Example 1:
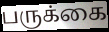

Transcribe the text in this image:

பருக்கை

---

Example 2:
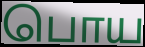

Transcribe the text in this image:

பொய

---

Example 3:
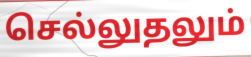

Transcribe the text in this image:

செல்லுதலும்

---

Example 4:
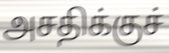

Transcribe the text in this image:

அசதிக்குச்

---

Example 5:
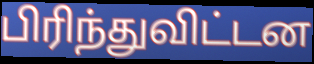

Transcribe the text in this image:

பிரிந்துவிட்டன